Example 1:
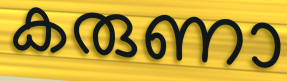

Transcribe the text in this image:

കരുണാ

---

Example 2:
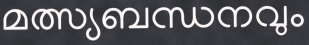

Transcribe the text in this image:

മത്സ്യബന്ധനവും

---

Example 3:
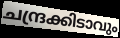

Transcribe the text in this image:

ചന്ദ്രക്കിടാവും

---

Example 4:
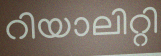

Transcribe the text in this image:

റിയാലിറ്റി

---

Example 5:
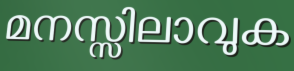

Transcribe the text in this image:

മനസ്സിലാവുക